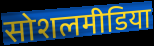
सोशलमीडिया